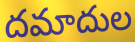
దమాదుల